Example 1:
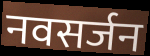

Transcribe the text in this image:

नवसर्जन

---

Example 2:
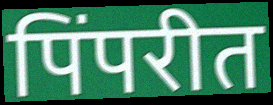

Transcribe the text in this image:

पिंपरीत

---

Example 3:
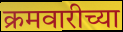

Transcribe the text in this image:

क्रमवारीच्या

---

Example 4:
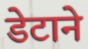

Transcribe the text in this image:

डेटाने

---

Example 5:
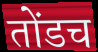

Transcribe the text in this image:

तोंडच